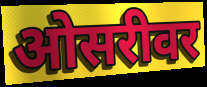
ओसरीवर